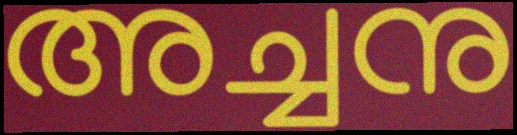
അച്ചനു